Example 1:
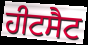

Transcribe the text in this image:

ਹੀਟਸੈਟ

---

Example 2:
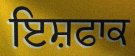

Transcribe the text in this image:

ਇਸ਼ਫਾਕ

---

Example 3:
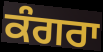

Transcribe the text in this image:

ਕੰਗਰਾ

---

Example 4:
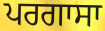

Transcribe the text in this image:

ਪਰਗਾਸਾ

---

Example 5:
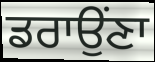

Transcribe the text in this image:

ਡਰਾਉਂਣਾ